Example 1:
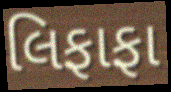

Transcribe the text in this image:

લિફાફા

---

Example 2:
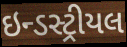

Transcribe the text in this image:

ઇન્ડસ્ટ્રીયલ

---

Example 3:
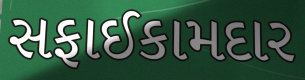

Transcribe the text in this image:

સફાઈકામદાર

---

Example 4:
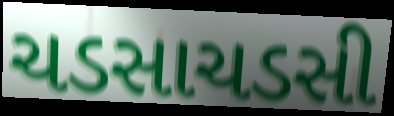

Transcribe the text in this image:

ચડસાચડસી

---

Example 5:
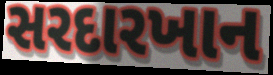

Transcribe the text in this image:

સરદારખાન